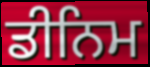
ਡੀਨਿਮ